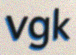
vgk